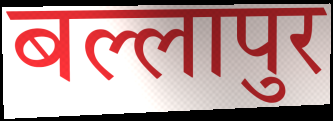
बल्लापुर